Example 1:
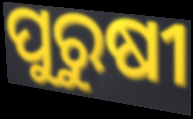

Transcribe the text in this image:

ପୁରୁଷୀ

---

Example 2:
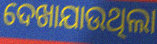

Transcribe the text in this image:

ଦେଖାଯାଉଥିଲା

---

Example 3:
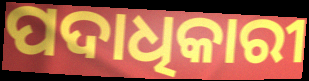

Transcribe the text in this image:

ପଦାଧିକାରୀ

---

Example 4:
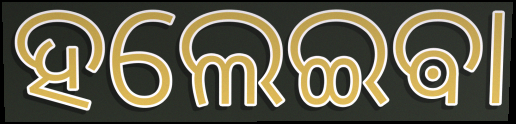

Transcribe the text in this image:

ହଲେଇଵା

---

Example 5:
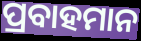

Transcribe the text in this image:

ପ୍ରବାହମାନ